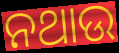
ନଥାଉ